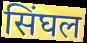
सिंघल